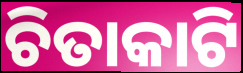
ଚିତାକାଟି